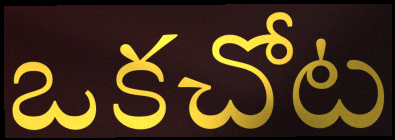
ఒకచోట